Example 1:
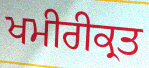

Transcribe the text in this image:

ਖਮੀਰੀਕ੍ਰਤ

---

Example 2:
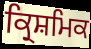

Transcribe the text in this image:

ਕ੍ਰਿਸ਼ਮਿਕ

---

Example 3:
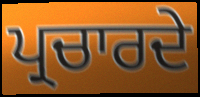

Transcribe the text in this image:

ਪ੍ਰਚਾਰਦੇ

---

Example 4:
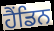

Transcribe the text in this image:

ਹੈਂਡਿਨ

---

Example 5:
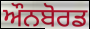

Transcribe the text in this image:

ਔਨਬੋਰਡ